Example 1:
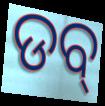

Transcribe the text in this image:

ଡବ୍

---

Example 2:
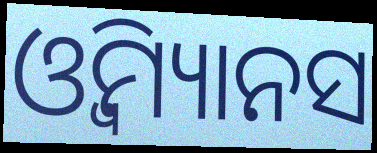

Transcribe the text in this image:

ଓ୍ବିମ୍ୟାନସ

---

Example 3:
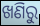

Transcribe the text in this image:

ଖଣିରୁ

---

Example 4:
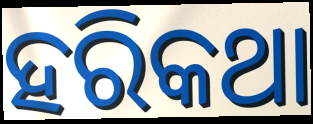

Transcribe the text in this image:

ହରିକଥା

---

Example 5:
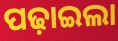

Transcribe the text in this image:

ପଢ଼ାଇଲା